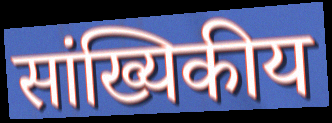
सांख्यिकीय